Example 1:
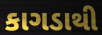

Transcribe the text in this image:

કાગડાથી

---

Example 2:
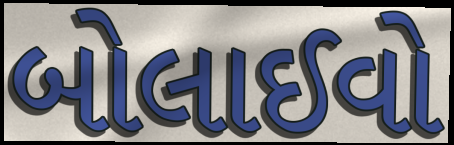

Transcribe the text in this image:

બોલાઈવો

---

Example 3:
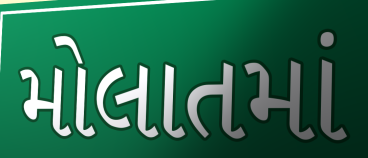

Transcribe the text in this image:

મોલાતમાં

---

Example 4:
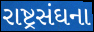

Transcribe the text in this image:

રાષ્ટ્રસંઘના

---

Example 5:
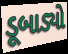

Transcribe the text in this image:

ડૂબાડ્યો